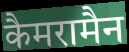
कैमरामैन